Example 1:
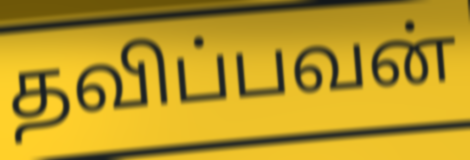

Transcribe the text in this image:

தவிப்பவன்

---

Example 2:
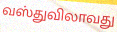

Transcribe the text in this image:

வஸ்துவிலாவது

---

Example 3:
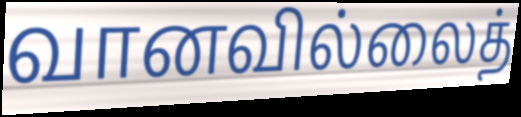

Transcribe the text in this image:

வானவில்லைத்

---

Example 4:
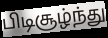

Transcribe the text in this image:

பிடிசூழ்ந்து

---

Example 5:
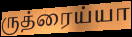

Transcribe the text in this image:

ருத்ரைய்யா